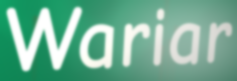
Wariar